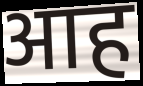
आह